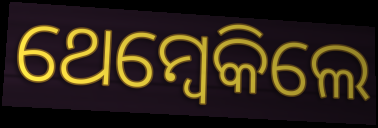
ଥେମ୍ବେକିଲେ